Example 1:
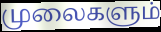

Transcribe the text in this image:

முலைகளும்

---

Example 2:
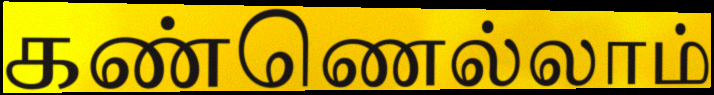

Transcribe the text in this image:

கண்ணெல்லாம்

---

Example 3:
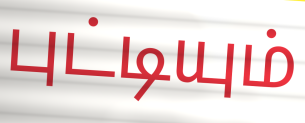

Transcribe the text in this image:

புட்டியும்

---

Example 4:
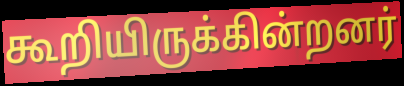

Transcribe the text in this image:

கூறியிருக்கின்றனர்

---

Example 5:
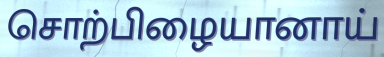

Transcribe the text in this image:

சொற்பிழையானாய்